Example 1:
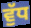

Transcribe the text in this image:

ਵੁੱਧ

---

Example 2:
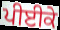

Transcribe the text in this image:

ਪੀਈਕੇ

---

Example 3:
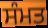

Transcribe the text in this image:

ਸੰਮਤ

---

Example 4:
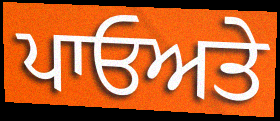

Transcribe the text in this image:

ਪਾਓਅਤੇ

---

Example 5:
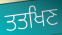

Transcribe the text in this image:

ਤਤਖਿਣ